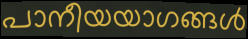
പാനീയയാഗങ്ങൾ